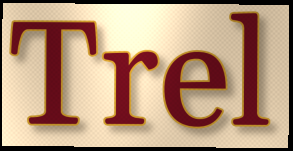
Trel